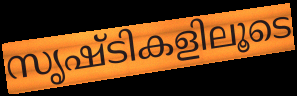
സൃഷ്ടികളിലൂടെ